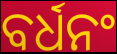
ବର୍ଧନଂ